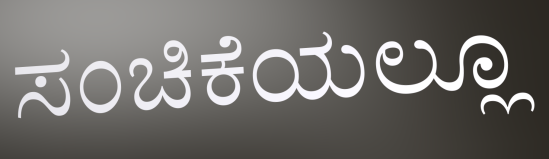
ಸಂಚಿಕೆಯಲ್ಲೂ